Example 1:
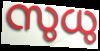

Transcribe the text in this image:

സുധു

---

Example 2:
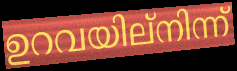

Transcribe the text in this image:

ഉറവയില്നിന്ന്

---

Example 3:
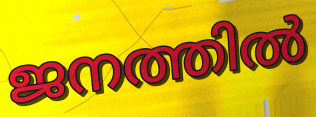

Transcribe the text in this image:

ജനത്തിൽ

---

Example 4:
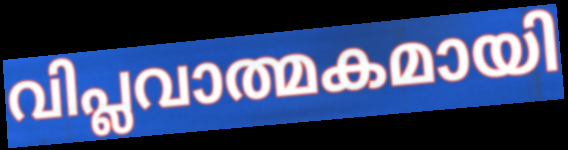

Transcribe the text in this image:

വിപ്ലവാത്മകമായി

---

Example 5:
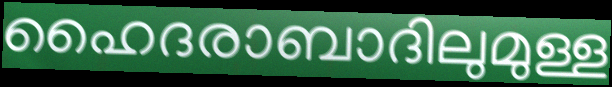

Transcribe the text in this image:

ഹൈദരാബാദിലുമുള്ള